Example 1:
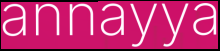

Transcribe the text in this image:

annayya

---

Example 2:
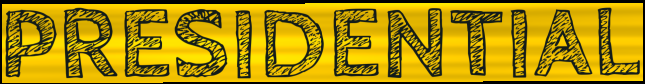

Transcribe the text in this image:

PRESIDENTIAL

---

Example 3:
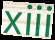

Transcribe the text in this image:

xiii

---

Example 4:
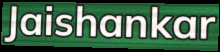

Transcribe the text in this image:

Jaishankar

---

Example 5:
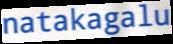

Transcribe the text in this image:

natakagalu